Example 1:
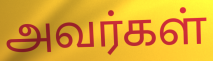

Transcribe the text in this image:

அவர்கள்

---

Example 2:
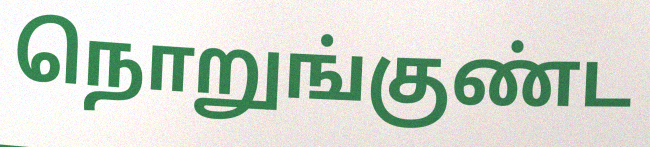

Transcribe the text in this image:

நொறுங்குண்ட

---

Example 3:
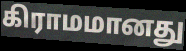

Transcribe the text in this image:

கிராமமானது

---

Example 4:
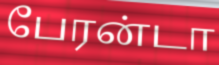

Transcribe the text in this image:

பேரன்டா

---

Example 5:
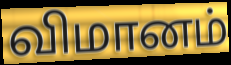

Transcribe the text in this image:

விமானம்